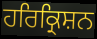
ਹਰਿਕ੍ਰਿਸ਼ਨ